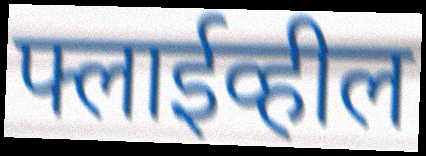
फ्लाईव्हील